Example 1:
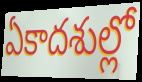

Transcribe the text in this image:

ఏకాదశుల్లో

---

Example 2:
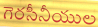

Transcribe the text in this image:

గెరసీనీయుల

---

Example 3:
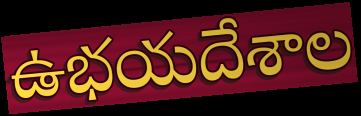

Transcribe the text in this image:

ఉభయదేశాల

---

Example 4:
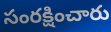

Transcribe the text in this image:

సంరక్షించారు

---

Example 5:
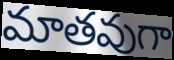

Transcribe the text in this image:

మాతవుగా